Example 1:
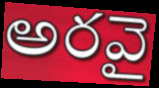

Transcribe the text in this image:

అరవై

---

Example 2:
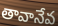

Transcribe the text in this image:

తావానేవ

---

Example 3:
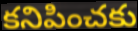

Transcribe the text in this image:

కనిపించకు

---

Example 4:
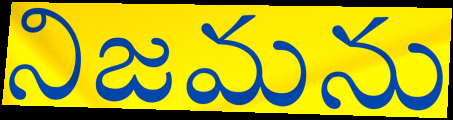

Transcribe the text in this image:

నిజమను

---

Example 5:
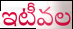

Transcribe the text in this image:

ఇటీవల